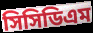
সিসিডিএম